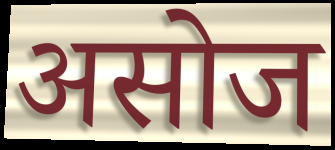
असोज